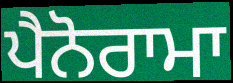
ਪੈਨੋਰਾਮਾ